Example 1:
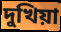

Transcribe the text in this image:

দুখিয়া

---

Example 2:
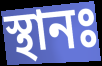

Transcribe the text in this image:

স্থানঃ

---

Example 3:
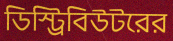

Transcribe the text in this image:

ডিস্ট্রিবিউটরের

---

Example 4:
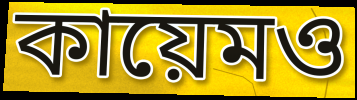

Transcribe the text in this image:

কায়েমও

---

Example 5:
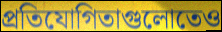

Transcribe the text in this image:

প্রতিযোগিতাগুলোতেও